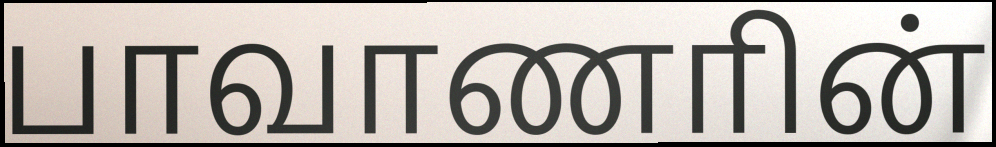
பாவாணரின்